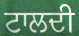
ਟਾਲਦੀ